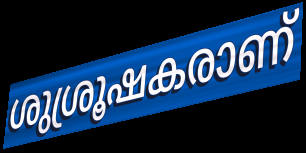
ശുശ്രൂഷകരാണ്